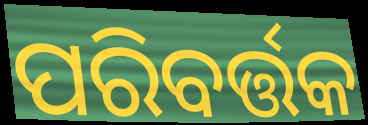
ପରିବର୍ତ୍ତକ